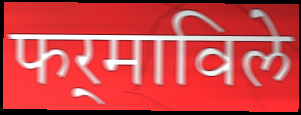
फर्माविले